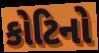
કોટિનો